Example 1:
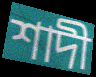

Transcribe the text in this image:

শাদী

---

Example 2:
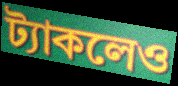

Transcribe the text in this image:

ট্যাকলেও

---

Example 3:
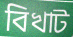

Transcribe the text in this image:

বিখাট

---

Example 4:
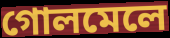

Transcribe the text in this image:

গোলমেলে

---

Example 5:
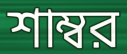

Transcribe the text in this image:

শাম্বর